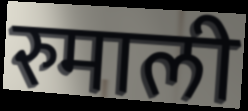
रुमाली